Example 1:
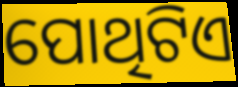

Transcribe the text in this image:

ପୋଥିଟିଏ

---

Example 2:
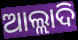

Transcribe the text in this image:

ଆଲ୍ଲାଦି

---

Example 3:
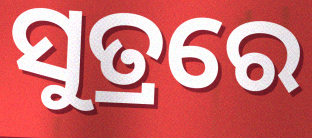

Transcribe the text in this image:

ସୁତ୍ରରେ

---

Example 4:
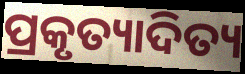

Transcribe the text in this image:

ପ୍ରକୃତ୍ୟାଦିତ୍ୟ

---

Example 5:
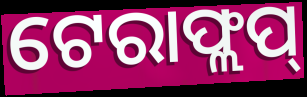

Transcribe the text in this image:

ଟେରାଫ୍ଲପ୍